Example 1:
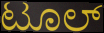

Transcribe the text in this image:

ಟೂಲ್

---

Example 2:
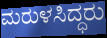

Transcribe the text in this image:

ಮರುಳಸಿದ್ಧರು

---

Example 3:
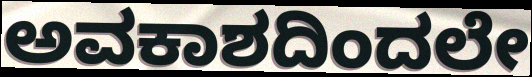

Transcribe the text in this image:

ಅವಕಾಶದಿಂದಲೇ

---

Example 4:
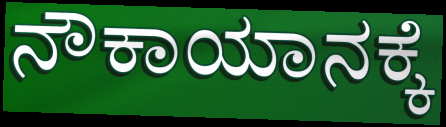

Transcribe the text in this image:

ನೌಕಾಯಾನಕ್ಕೆ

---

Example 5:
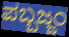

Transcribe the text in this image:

ಪಬ್ಬಜ್ಜಂ